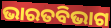
ଭାରତବିଭାଗ